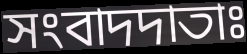
সংবাদদাতাঃ